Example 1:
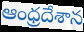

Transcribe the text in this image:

ఆంధ్రదేశాన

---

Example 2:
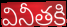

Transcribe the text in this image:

వినీతకి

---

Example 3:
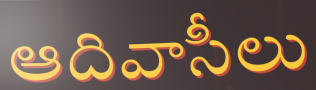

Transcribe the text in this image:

ఆదివాసీలు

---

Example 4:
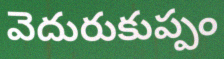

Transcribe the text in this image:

వెదురుకుప్పం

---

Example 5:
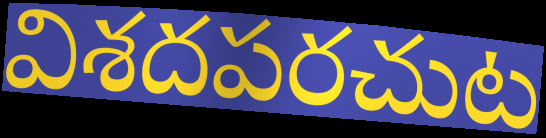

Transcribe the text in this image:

విశదపరచుట